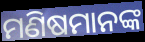
ମଣିଷମାନଙ୍କ